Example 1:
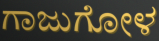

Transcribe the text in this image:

ಗಾಜುಗೋಳ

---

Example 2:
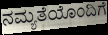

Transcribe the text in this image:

ನಮ್ಯತೆಯೊಂದಿಗೆ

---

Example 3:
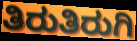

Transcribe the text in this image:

ತಿರುತಿರುಗಿ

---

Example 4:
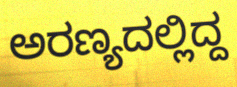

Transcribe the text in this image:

ಅರಣ್ಯದಲ್ಲಿದ್ದ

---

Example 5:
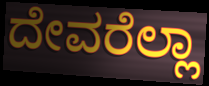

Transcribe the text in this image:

ದೇವರೆಲ್ಲಾ